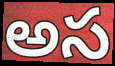
అస